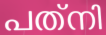
പത്‌നി